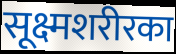
सूक्ष्मशरीरका